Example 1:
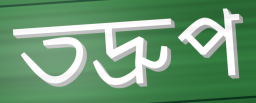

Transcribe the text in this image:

তদ্ৰুপ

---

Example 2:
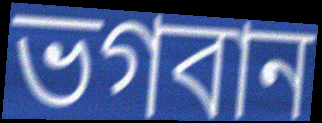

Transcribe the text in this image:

ভগবান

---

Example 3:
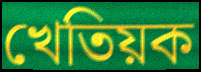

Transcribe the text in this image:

খেতিয়ক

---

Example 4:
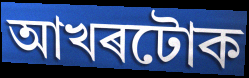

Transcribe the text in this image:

আখৰটোক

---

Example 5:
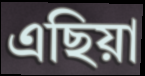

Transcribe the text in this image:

এছিয়া